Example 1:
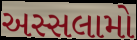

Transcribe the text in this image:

અસ્સલામો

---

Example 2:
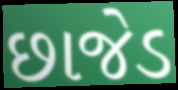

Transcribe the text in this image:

છાજેડ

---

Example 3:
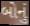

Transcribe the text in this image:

બોનું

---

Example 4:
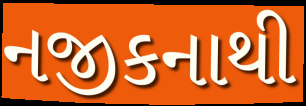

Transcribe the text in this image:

નજીકનાથી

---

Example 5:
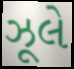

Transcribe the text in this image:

ઝૂલે